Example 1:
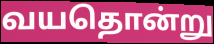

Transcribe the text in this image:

வயதொன்று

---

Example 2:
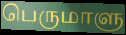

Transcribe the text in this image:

பெருமாளு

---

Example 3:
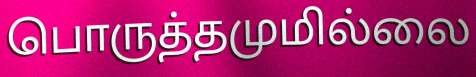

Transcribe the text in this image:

பொருத்தமுமில்லை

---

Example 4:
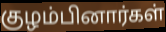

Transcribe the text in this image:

குழம்பினார்கள்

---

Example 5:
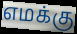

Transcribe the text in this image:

எமக்கு